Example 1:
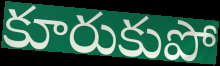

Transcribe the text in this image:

కూరుకుపో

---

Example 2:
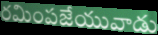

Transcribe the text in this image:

రమింపజేయువాడు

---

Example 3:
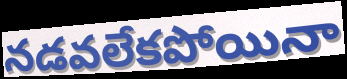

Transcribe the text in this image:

నడవలేకపోయినా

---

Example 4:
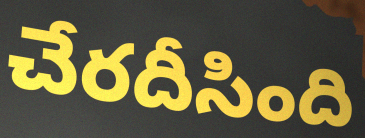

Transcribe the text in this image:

చేరదీసింది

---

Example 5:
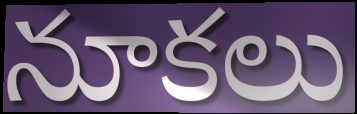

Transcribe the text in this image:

నూకలు